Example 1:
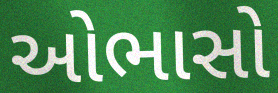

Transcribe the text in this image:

ઓભાસો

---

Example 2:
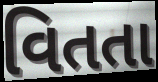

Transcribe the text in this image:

વિતતા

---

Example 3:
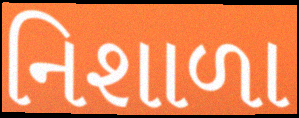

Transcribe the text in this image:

નિશાળા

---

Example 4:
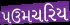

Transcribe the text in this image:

પઉમચરિય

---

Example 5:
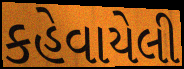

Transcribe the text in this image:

કહેવાયેલી